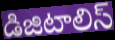
డిజిటాలిస్